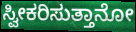
ಸ್ವೀಕರಿಸುತ್ತಾನೋ